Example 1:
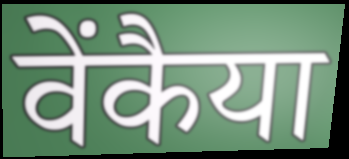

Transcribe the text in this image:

वेंकैया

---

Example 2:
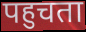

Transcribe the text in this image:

पहुचता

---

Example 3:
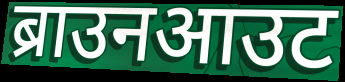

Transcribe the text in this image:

ब्राउनआउट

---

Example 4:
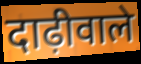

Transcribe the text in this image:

दाढ़ीवाले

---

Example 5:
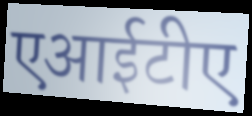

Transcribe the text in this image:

एआईटीए